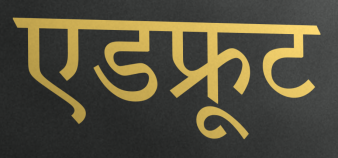
एडफ्रूट